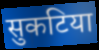
सुकटिया